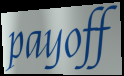
payoff